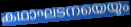
കഥാഘടനയെയും